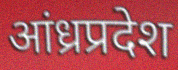
आंध्रप्रदेश